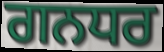
ਗਨਧਰ